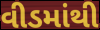
વીડમાંથી